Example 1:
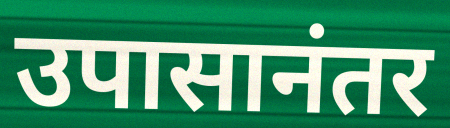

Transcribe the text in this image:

उपासानंतर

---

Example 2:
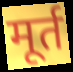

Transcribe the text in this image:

मूर्त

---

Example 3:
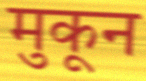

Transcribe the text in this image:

मुकून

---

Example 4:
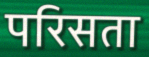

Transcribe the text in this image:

परिसता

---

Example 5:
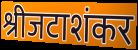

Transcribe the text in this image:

श्रीजटाशंकर